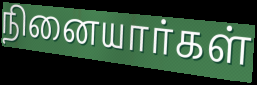
நினையார்கள்